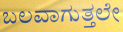
ಬಲವಾಗುತ್ತಲೇ